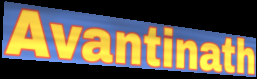
Avantinath